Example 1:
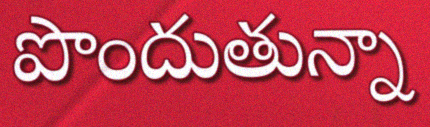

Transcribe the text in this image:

పొందుతున్నా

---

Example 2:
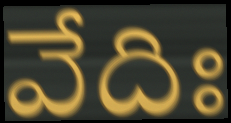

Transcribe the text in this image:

వేదిః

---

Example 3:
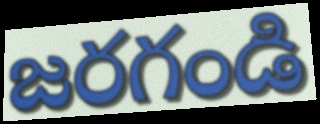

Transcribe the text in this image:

జరగండి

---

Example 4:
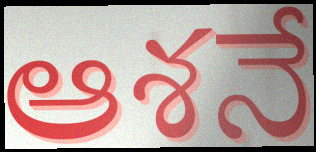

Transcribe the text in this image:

ఆశనే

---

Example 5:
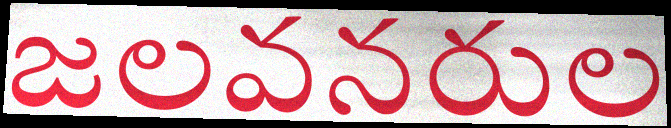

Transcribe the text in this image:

జలవనరుల